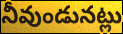
నీవుండునట్లు